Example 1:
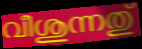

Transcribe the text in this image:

വീശുന്നതു്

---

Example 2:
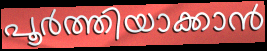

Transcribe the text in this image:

പൂർത്തിയാക്കാൻ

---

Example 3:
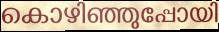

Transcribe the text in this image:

കൊഴിഞ്ഞുപ്പോയി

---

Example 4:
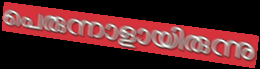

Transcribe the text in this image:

പെരുന്നാളായിരുന്നു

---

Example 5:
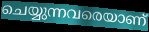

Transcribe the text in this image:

ചെയ്യുന്നവരെയാണ്